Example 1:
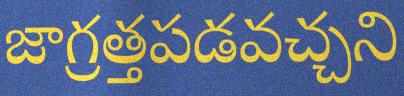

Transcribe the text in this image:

జాగ్రత్తపడవచ్చని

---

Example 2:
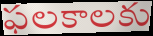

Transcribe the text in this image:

ఫలకాలకు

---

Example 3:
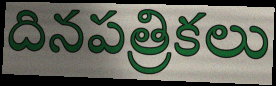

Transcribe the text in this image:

దినపత్రికలు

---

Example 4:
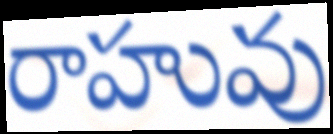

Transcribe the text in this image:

రాహువు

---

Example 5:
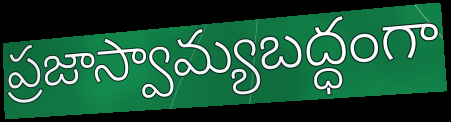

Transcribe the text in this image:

ప్రజాస్వామ్యబద్ధంగా